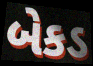
બેકડ